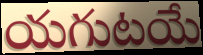
యగుటయే